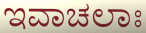
ಇವಾಚಲಾಃ